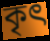
কৃৎ